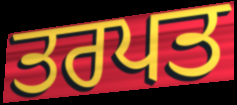
ਤਰਪਤ